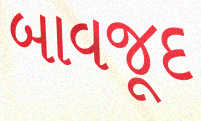
બાવજૂદ